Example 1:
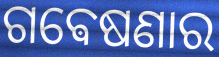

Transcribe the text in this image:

ଗଵେଷଣାର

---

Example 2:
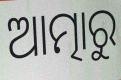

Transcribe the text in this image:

ଆତ୍ମାରୁ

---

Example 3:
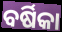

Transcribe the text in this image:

ବର୍ଷିକା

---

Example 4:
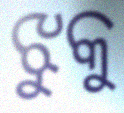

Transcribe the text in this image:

ଝୁକୁ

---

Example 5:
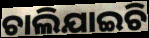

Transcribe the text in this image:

ଚାଲିଯାଇଚି